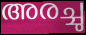
അരച്ചു